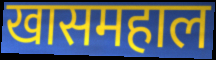
खासमहाल